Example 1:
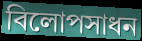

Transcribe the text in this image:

বিলোপসাধন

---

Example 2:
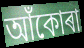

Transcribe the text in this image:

আঁকোৰা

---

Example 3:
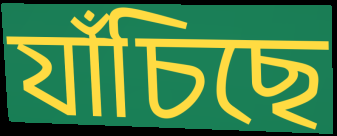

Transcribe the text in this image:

যাঁচিছে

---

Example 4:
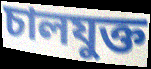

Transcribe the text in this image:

চালযুক্ত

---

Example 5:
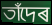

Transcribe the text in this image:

তাঁদেৰ